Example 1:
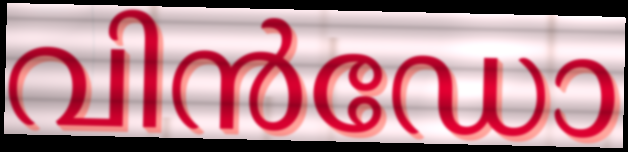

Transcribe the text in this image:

വിൻഡോ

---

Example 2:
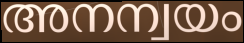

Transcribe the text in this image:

അനന്വയം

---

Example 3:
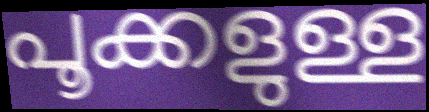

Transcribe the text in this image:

പൂക്കളുള്ള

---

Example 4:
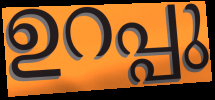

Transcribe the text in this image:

ഉറപ്പു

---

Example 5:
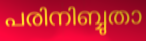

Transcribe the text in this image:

പരിനിബ്ബുതാ